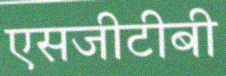
एसजीटीबी